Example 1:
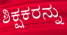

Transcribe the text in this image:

ಶಿಕ್ಷಕರನ್ನು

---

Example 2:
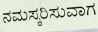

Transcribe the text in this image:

ನಮಸ್ಕರಿಸುವಾಗ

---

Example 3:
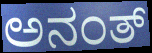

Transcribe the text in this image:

ಅನಂತ್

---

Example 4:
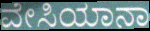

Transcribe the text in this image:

ವೇಸಿಯಾನಾ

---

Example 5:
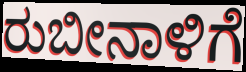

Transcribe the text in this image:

ರುಬೀನಾಳಿಗೆ